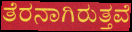
ತೆರನಾಗಿರುತ್ತವೆ